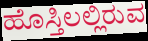
ಹೊಸ್ತಿಲಲ್ಲಿರುವ